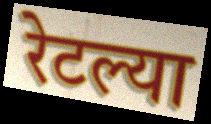
रेटल्या